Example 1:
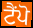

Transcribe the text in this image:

ਟੈਂਪੋ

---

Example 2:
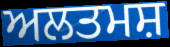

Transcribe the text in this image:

ਅਲਤਮਸ਼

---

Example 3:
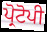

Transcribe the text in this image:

ਪ੍ਰੋਟੋਪੀ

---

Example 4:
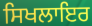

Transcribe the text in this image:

ਸਿਖਲਾਇਰ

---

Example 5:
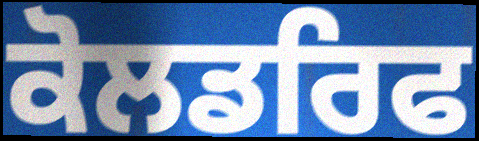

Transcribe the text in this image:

ਕੋਲਡਰਿਫ